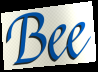
Bee